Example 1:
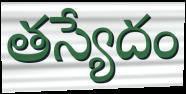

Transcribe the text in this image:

తస్యేదం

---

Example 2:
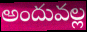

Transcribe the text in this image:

అందువల్ల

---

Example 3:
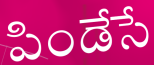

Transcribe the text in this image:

పిండేసే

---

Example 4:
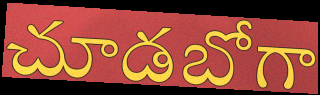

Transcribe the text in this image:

చూడబోగా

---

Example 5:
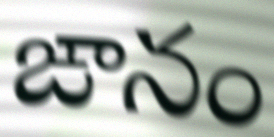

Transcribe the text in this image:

ఙానం